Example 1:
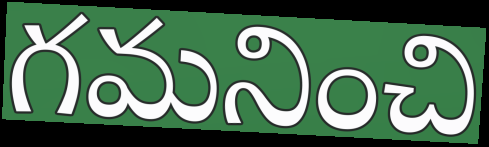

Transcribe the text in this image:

గమనించి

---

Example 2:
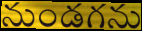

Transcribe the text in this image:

నుండగను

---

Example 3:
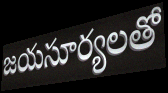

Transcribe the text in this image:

జయసూర్యలతో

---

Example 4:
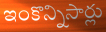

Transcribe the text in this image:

ఇంకొన్నిసార్లు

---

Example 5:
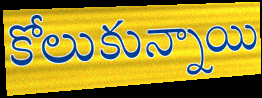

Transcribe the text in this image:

కోలుకున్నాయి